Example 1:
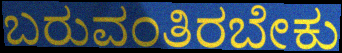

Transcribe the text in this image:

ಬರುವಂತಿರಬೇಕು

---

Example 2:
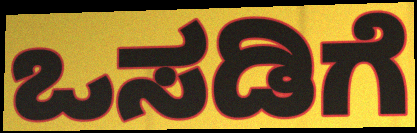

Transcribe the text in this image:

ಒಸಡಿಗೆ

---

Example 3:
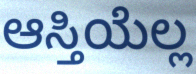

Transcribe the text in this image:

ಆಸ್ತಿಯೆಲ್ಲ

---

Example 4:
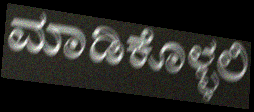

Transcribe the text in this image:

ಮಾಡಿಕೊಳ್ಳಲಿ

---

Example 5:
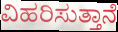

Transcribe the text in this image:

ವಿಹರಿಸುತ್ತಾನೆ